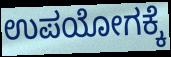
ಉಪಯೋಗಕ್ಕೆ